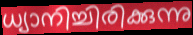
ധ്യാനിച്ചിരിക്കുന്നു